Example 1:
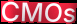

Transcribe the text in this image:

CMOs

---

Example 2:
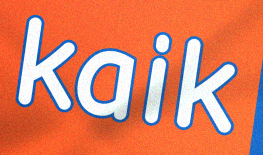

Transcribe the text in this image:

kaik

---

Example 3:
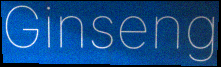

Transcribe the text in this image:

Ginseng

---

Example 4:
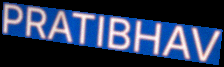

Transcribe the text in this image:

PRATIBHAV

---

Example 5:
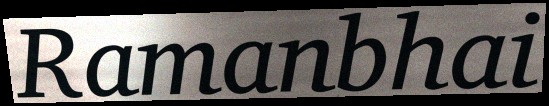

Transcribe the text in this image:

Ramanbhai